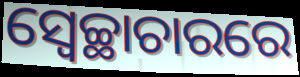
ସ୍ବେଚ୍ଛାଚାରରେ